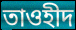
তাওহীদ